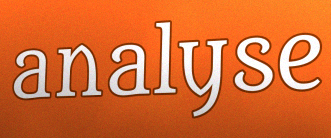
analyse